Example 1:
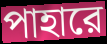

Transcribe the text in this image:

পাহারে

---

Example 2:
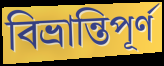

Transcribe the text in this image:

বিভ্রান্তিপূর্ণ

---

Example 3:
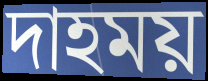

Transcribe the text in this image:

দাহময়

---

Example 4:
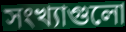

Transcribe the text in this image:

সংখ্যাগুলো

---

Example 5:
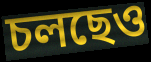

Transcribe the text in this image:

চলছেও